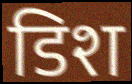
डिश